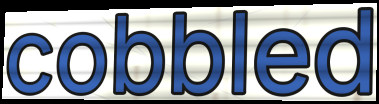
cobbled